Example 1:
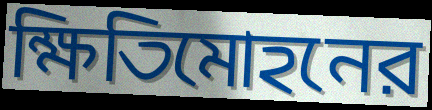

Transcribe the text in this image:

ক্ষিতিমোহনের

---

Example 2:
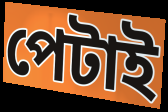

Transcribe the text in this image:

পেটাই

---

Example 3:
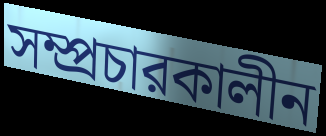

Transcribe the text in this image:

সম্প্রচারকালীন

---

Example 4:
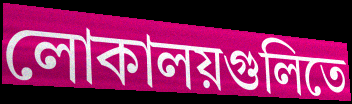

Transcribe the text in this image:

লোকালয়গুলিতে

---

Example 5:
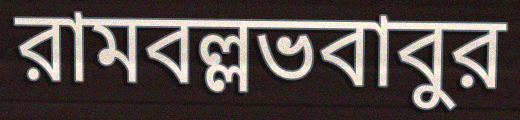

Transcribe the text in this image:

রামবল্লভবাবুর